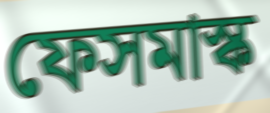
ফেসমাস্ক